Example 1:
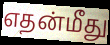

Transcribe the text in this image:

எதன்மீது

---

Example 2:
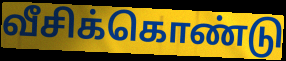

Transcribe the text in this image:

வீசிக்கொண்டு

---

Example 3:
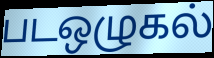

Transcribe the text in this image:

படஒழுகல்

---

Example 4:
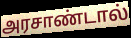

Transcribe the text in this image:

அரசாண்டால்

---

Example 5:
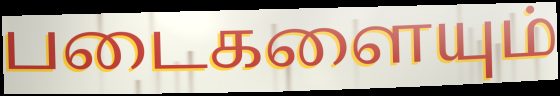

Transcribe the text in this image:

படைகளையும்